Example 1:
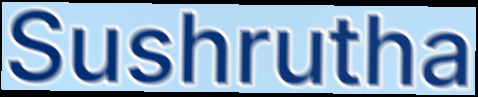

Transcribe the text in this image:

Sushrutha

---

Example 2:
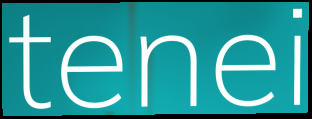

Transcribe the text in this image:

tenei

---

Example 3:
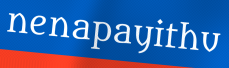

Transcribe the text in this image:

nenapayithu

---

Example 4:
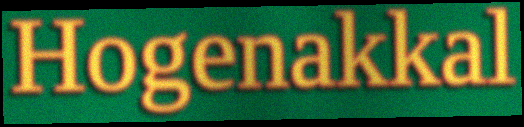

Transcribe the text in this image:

Hogenakkal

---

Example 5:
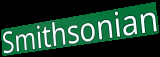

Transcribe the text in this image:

Smithsonian